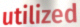
utilized